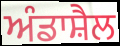
ਅੰਡਾਸ਼ੈਲ